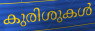
കുരിശുകൾ